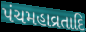
પંચમહાવ્રતાદિ